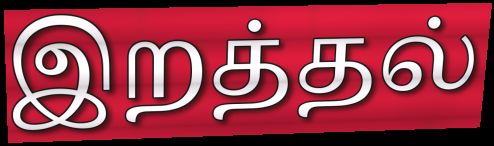
இறத்தல்